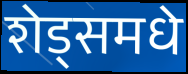
शेड्समधे